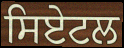
ਸਿਏਟਲ